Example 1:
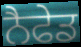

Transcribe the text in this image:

ਨੈਫੇਡ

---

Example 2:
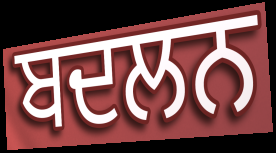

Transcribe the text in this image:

ਬਦਲਨ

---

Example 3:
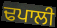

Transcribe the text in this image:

ਢਪਾਲੀ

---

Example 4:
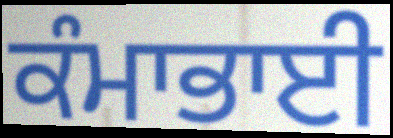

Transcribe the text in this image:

ਕੰਮਾਭਾਈ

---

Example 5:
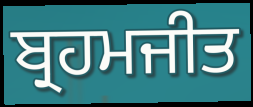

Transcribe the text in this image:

ਬ੍ਰਹਮਜੀਤ